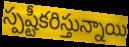
స్పష్టీకరిస్తున్నాయి